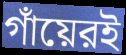
গাঁয়েরই